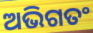
ଅଭିଗତଂ